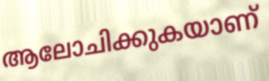
ആലോചിക്കുകയാണ്